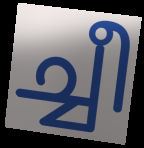
ച്ചീ